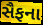
સૈફના